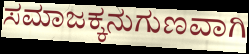
ಸಮಾಜಕ್ಕನುಗುಣವಾಗಿ